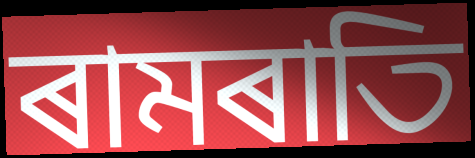
ৰামৰাতি